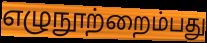
எழுநூற்றைம்பது